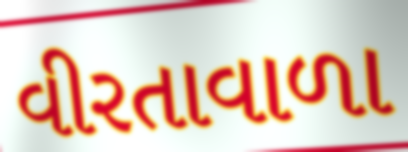
વીરતાવાળા